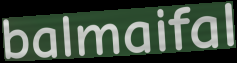
balmaifal